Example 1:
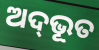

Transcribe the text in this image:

ଅଦ୍‍ଭୂତ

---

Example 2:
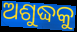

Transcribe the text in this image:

ଅଶୁଦ୍ଧକୁ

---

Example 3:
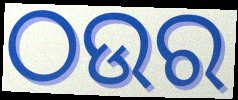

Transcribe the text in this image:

ଠଉର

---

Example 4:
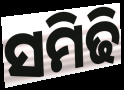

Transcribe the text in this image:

ସମିଢି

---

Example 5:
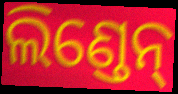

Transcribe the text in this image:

ଲିଣ୍ଡେନ୍